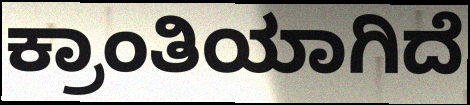
ಕ್ರಾಂತಿಯಾಗಿದೆ